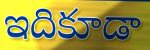
ఇదికూడా